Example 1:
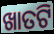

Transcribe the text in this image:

ଖାତଟି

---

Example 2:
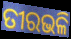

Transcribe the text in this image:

ତୀରଭଳି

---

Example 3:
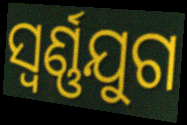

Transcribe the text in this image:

ସ୍ଵର୍ଣ୍ଣଯୁଗ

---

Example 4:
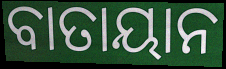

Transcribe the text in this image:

ବାତାୟାନ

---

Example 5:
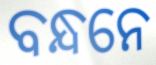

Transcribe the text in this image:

ବନ୍ଧନେ